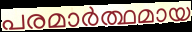
പരമാർത്ഥമായ